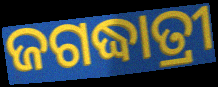
ଜଗଦ୍ଧାତ୍ରୀ